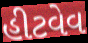
હીટવેવ